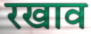
रखाव